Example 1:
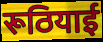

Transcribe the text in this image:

रूठियाई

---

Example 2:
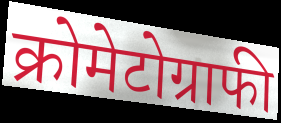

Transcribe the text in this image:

क्रोमेटोग्राफी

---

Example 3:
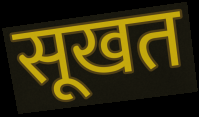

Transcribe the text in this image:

सूखत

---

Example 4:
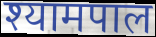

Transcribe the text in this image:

श्यामपाल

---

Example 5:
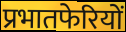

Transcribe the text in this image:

प्रभातफेरियों